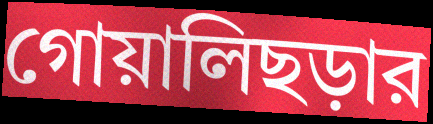
গোয়ালিছড়ার